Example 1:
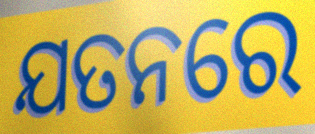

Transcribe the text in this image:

ଯତନରେ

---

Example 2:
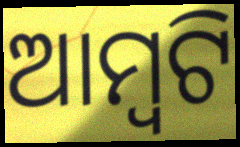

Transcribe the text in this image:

ଆମ୍ୱଟି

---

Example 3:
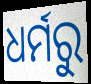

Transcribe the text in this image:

ଧର୍ମରୁ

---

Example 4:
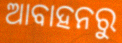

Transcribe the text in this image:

ଆବାହନରୁ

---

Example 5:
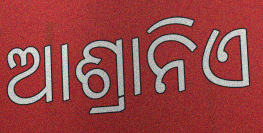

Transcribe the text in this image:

ଆଶ୍ରାନିଏ